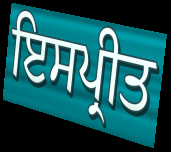
ਇਸਪ੍ਰੀਤ